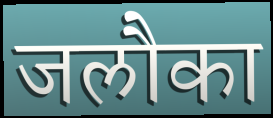
जलौका